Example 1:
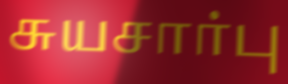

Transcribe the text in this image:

சுயசார்பு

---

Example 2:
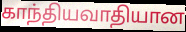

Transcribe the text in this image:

காந்தியவாதியான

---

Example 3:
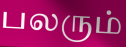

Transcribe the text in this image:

பலரும்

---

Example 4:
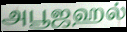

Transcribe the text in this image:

அபூஜஹல்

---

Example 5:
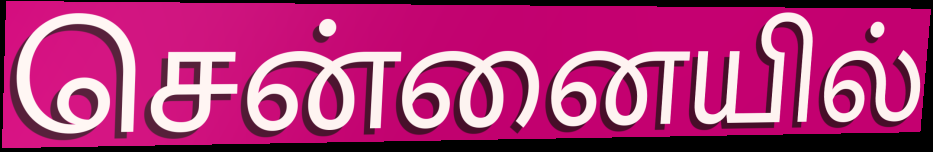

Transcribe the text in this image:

சென்னையில்